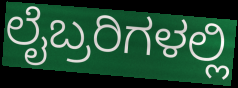
ಲೈಬ್ರರಿಗಳಲ್ಲಿ